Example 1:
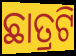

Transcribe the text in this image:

ଛାତ୍ରଟି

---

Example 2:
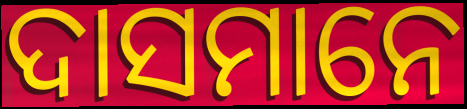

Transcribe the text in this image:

ଦାସମାନେ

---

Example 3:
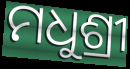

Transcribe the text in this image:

ମଧୁଶ୍ରୀ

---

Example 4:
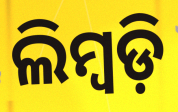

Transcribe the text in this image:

ଲିମ୍ବଡ଼ି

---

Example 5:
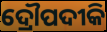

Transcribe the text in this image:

ଦ୍ରୌପଦୀକି